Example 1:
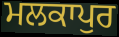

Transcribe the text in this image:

ਮਲਕਾਪੁਰ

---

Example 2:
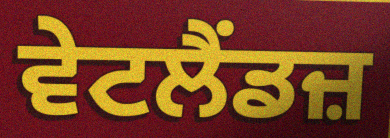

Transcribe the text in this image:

ਵੇਟਲੈਂਡਜ਼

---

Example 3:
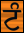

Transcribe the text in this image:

ਟੰ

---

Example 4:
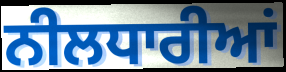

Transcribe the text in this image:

ਨੀਲਧਾਰੀਆਂ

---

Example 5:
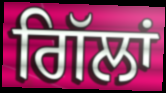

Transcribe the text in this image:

ਗਿੱਲਾਂ